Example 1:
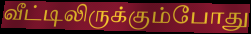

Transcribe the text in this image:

வீட்டிலிருக்கும்போது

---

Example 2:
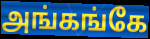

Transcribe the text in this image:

அங்கங்கே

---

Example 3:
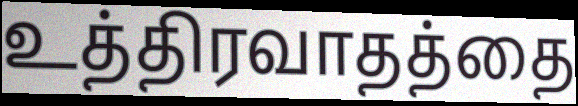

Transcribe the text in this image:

உத்திரவாதத்தை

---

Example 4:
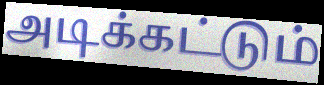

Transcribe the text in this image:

அடிக்கட்டும்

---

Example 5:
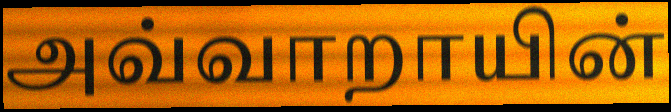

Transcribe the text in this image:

அவ்வாறாயின்